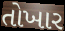
તોખાર